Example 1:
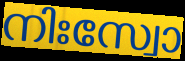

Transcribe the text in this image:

നിഃസ്വോ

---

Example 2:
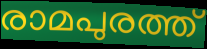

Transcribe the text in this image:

രാമപുരത്ത്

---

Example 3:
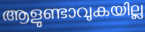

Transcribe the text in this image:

ആളുണ്ടാവുകയില്ല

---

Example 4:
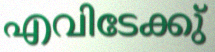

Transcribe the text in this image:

എവിടേക്കു്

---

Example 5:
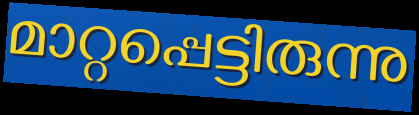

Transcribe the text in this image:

മാറ്റപ്പെട്ടിരുന്നു